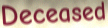
Deceased